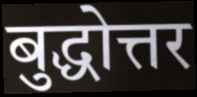
बुद्धोत्तर